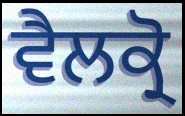
ਵੈਲਕ੍ਰੋ